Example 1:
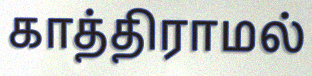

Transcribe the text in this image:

காத்திராமல்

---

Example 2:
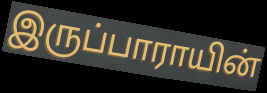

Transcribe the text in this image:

இருப்பாராயின்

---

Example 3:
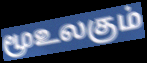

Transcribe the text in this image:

மூஉலகும்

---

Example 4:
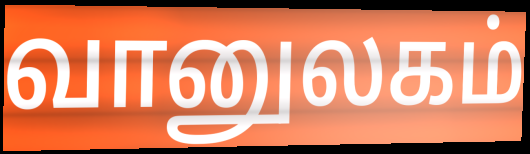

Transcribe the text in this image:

வானுலகம்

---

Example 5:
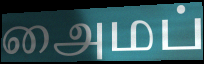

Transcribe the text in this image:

அைமப்